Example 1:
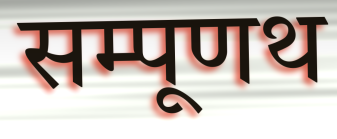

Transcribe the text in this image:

सम्पूणथ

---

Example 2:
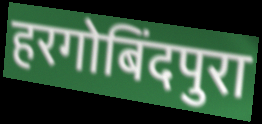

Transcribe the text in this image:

हरगोबिंदपुरा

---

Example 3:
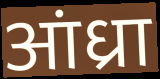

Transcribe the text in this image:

आंध्रा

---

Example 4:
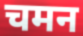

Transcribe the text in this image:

चमन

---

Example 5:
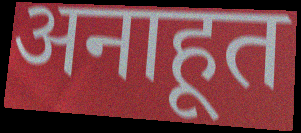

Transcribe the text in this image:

अनाहूत